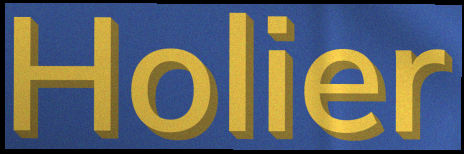
Holier